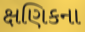
ક્ષણિકના